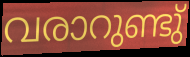
വരാറുണ്ടു്